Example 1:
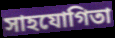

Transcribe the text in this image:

সাহযোগিতা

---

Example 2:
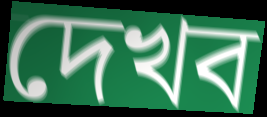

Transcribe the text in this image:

দেখব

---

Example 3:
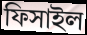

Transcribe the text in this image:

ফিসাইল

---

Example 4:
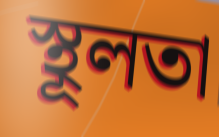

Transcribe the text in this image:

স্থূলতা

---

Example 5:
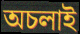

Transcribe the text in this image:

অচলাই